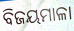
ବିଜୟମାଳା